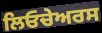
ਲਿਓਚੇਅਰਸ